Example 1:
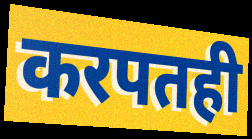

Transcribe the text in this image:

करपतही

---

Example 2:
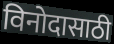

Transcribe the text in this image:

विनोदासाठी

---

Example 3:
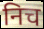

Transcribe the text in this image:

निच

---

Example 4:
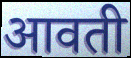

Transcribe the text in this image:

आवती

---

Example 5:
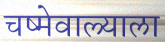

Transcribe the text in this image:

चष्मेवाल्याला